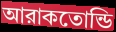
আরাকতোন্ডি